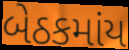
બેઠકમાંય